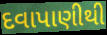
દવાપાણીથી